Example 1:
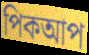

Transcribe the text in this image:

পিকআপ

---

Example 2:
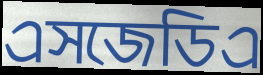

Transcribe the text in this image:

এসজেডিএ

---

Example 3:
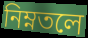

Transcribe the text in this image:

নিম্নতলে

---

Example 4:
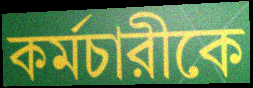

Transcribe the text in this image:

কর্মচারীকে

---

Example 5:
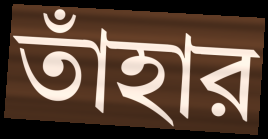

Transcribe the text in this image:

তাঁহার